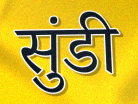
सुंडी